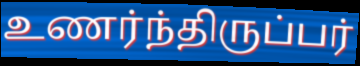
உணர்ந்திருப்பர்